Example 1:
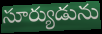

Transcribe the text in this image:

సూర్యుడును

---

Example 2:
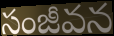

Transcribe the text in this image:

సంజీవన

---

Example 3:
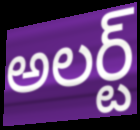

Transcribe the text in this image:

అలర్ట్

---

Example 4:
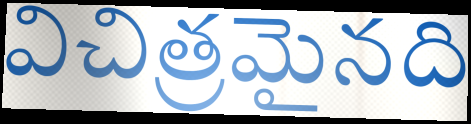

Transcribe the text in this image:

విచిత్రమైనది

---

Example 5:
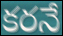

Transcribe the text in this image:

కరనే